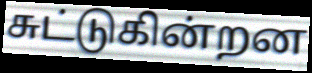
சுட்டுகின்றன